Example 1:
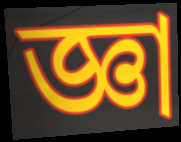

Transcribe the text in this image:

জ্ঞা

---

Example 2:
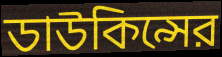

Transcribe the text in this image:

ডাউকিন্সের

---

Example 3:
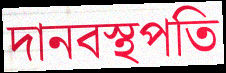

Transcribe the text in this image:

দানবস্থপতি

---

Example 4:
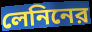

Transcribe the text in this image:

লেনিনের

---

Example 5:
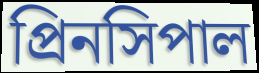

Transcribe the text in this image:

প্রিনসিপাল